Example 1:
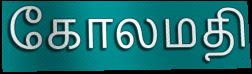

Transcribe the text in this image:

கோலமதி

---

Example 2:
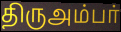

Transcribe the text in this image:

திருஅம்பர்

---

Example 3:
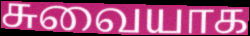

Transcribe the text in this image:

சுவையாக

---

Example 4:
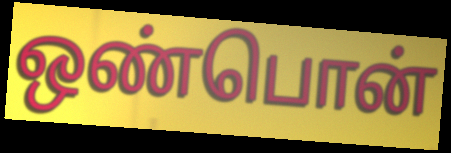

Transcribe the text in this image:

ஒண்பொன்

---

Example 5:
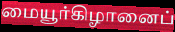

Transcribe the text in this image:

மையூர்கிழானைப்